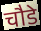
चौडे